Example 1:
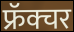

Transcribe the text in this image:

फ्रॅक्चर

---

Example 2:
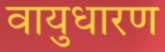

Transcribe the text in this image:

वायुधारण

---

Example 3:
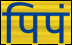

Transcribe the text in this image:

पिपं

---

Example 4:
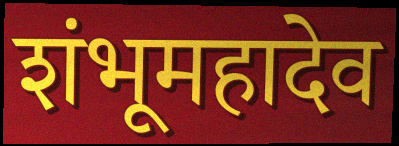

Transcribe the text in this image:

शंभूमहादेव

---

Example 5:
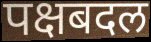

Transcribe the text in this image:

पक्षबदल